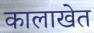
कालाखेत